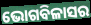
ଭୋଗବିଳାସର